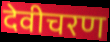
देवीचरण